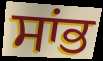
ਸਾਂਭ